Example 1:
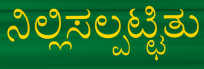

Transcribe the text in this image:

ನಿಲ್ಲಿಸಲ್ಪಟ್ಟಿತು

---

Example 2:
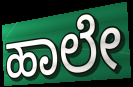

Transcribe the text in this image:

ಹಾಲೇ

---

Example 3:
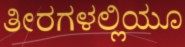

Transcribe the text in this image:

ತೀರಗಳಲ್ಲಿಯೂ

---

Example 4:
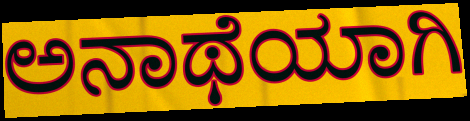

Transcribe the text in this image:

ಅನಾಥೆಯಾಗಿ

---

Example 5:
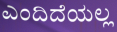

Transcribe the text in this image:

ಎಂದಿದೆಯಲ್ಲ